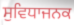
ਸੁਵਿਧਾਜਨਕ